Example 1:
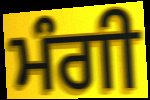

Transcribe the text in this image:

ਮੰਗੀ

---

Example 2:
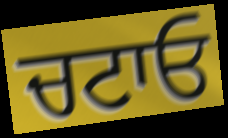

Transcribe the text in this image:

ਚਟਾਓ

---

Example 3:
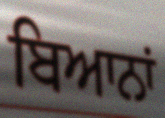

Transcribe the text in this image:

ਬਿਆਨਾਂ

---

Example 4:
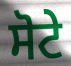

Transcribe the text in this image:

ਸੋਟੇ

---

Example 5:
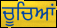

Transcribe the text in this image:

ਚੂਚਿਆਂ